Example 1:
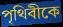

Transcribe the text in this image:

পৃথিবীকে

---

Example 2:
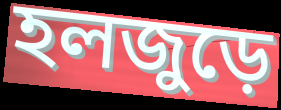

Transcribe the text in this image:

হলজুড়ে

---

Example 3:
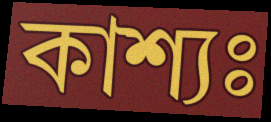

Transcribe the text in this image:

কাশ্যঃ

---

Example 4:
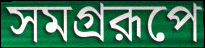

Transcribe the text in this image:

সমগ্ররূপে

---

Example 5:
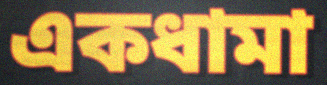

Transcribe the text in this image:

একধামা